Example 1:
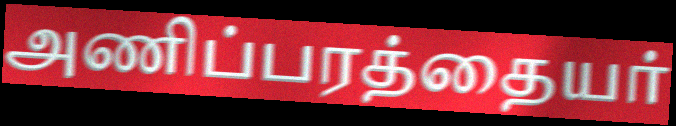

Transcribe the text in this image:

அணிப்பரத்தையர்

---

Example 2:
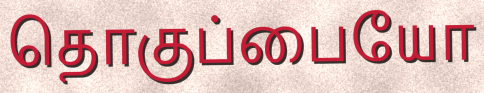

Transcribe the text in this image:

தொகுப்பையோ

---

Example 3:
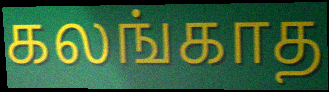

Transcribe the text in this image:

கலங்காத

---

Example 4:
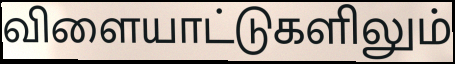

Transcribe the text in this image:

விளையாட்டுகளிலும்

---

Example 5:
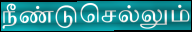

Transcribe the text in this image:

நீண்டுசெல்லும்